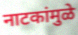
नाटकांमुळे